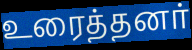
உரைத்தனர்